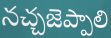
నచ్చజెప్పాలి